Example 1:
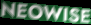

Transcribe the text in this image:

NEOWISE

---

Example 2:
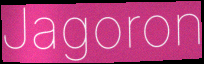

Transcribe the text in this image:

Jagoron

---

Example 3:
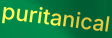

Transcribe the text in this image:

puritanical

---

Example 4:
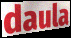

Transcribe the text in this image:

daula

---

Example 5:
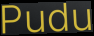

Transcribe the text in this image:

Pudu